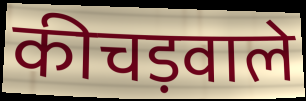
कीचड़वाले